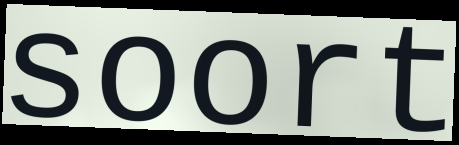
soort